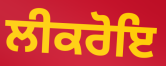
ਲੀਕਰੋਇ